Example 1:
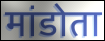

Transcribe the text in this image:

मांडोता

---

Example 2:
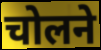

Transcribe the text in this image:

चोलने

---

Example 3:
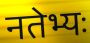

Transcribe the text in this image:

नतेभ्यः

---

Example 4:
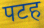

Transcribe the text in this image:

पटह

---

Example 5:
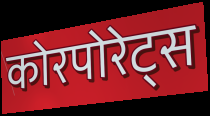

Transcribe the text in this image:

कोरपोरेट्स